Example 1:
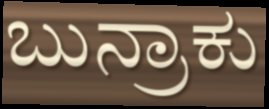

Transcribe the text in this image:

ಬುನ್ರಾಕು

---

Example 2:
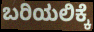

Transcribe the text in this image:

ಬರಿಯಲಿಕ್ಕೆ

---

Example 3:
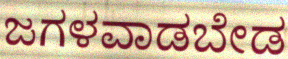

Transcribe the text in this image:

ಜಗಳವಾಡಬೇಡ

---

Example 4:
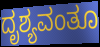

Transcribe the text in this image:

ದೃಶ್ಯವಂತೂ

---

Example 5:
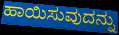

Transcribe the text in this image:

ಹಾಯಿಸುವುದನ್ನು